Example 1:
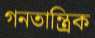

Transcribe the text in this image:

গনতান্ত্ৰিক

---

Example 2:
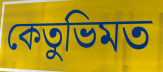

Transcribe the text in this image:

কেতুভিমত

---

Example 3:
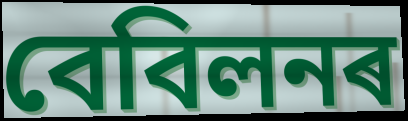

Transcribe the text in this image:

বেবিলনৰ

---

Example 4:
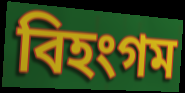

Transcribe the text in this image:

বিহংগম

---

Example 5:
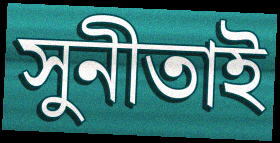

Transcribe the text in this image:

সুনীতাই